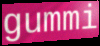
gummi